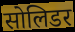
सोलिडर